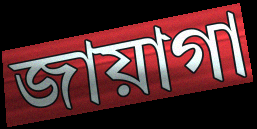
জায়াগা